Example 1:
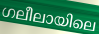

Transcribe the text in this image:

ഗലീലായിലെ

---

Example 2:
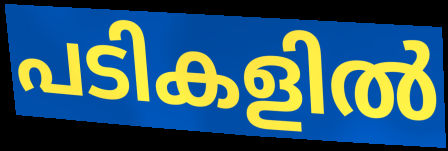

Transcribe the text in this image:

പടികളിൽ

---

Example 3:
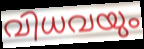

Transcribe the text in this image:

വിധവയും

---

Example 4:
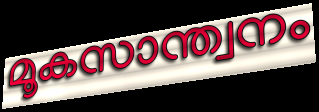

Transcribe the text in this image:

മൂകസാന്ത്വനം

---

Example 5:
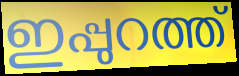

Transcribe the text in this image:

ഇപ്പുറത്ത്